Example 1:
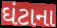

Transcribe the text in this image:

ઘંટાના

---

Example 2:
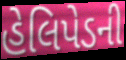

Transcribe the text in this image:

હેલિપેડની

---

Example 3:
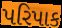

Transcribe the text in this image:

પરિપાક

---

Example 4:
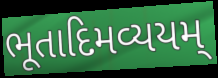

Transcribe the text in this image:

ભૂતાદિમવ્યયમ્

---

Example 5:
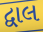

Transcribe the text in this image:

દ્વાલ